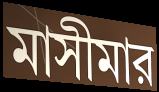
মাসীমার